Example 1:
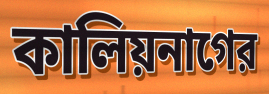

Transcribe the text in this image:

কালিয়নাগের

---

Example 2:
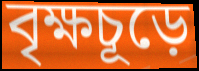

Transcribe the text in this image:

বৃক্ষচূড়ে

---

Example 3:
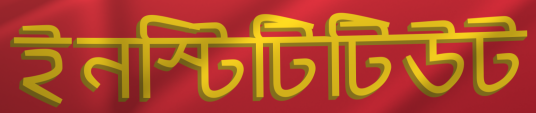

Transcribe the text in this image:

ইনস্টিটিটিউট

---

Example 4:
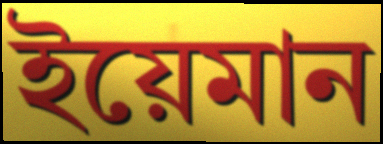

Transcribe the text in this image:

ইয়েমান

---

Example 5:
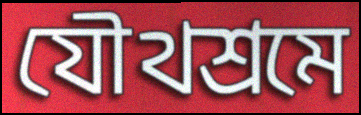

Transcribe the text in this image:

যৌথশ্রমে